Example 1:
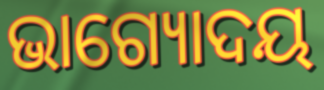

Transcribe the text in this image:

ଭାଗ୍ୟୋଦୟ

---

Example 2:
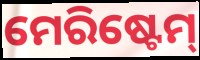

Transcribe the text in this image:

ମେରିଷ୍ଟେମ୍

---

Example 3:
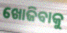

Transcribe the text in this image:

ଖୋଜିବାକୁ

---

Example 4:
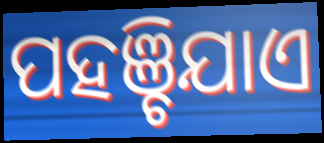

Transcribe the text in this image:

ପହଞ୍ଚିଯାଏ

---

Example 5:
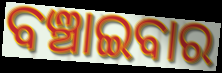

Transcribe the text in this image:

ବଞ୍ଚାଇବାର